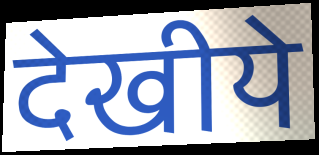
देखीये